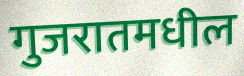
गुजरातमधील